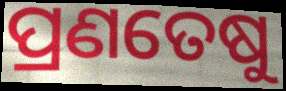
ପ୍ରଣତେଷୁ